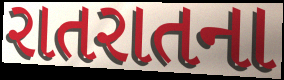
રાતરાતના